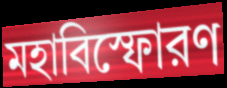
মহাবিস্ফোরণ